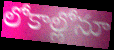
లోకాల్లోనూ